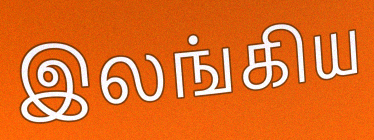
இலங்கிய